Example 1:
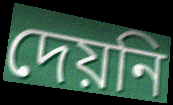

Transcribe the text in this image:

দেয়নি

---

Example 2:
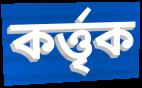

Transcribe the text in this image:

কর্ত্তৃক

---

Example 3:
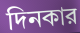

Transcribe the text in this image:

দিনকার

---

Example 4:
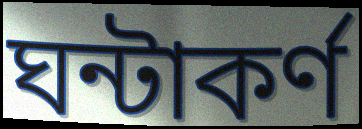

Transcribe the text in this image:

ঘন্টাকর্ণ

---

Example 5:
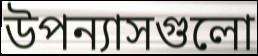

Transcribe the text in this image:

উপন্যাসগুলো